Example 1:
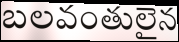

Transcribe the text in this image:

బలవంతులైన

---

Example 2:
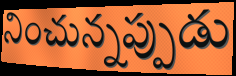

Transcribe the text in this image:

నించున్నప్పుడు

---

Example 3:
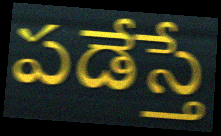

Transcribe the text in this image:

పడేస్తే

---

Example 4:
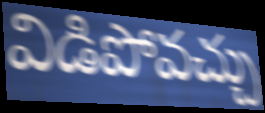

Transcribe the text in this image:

విడిపోవచ్చు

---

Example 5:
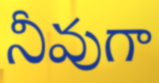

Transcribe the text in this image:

నీవుగా